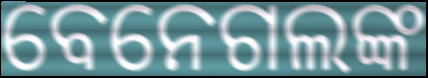
ବେନେଗଲଙ୍କ